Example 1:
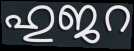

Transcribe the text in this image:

ഹുജറ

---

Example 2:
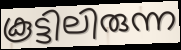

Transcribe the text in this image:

കൂട്ടിലിരുന്ന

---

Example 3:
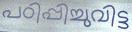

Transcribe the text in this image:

പഠിപ്പിച്ചുവിട്ട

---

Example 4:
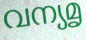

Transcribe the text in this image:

വന്യമൃ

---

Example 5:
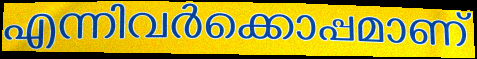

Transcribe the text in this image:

എന്നിവർക്കൊപ്പമാണ്